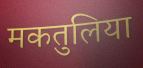
मकतुलिया